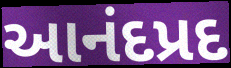
આનંદપ્રદ